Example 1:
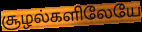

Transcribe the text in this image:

சூழல்களிலேயே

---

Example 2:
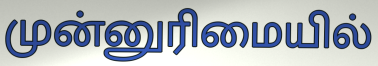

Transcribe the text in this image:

முன்னுரிமையில்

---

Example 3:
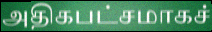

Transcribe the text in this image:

அதிகபட்சமாகச்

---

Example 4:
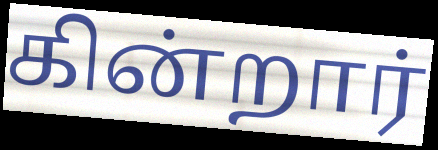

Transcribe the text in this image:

கின்றார்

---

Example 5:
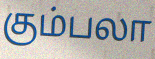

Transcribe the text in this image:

கும்பலா